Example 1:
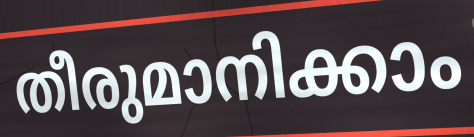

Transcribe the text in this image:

തീരുമാനിക്കാം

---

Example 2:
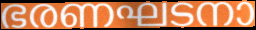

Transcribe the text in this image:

ഭരണഘടനാ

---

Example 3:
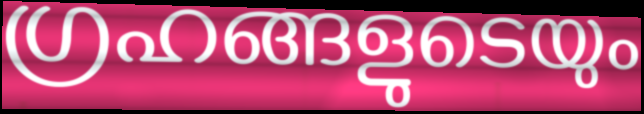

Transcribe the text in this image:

ഗ്രഹങ്ങളുടെയും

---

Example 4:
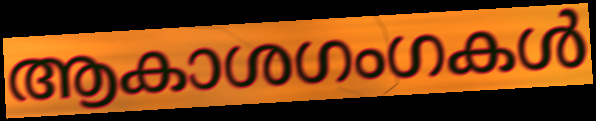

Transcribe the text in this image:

ആകാശഗംഗകൾ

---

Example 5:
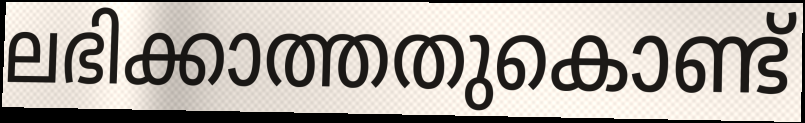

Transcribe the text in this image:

ലഭിക്കാത്തതുകൊണ്ട്